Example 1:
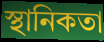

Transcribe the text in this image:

স্থানিকতা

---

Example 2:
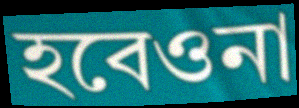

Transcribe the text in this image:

হবেওনা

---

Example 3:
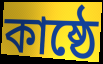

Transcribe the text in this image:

কাষ্ঠে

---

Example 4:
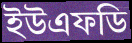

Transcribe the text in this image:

ইউএফডি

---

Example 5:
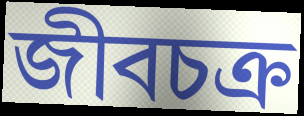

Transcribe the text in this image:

জীবচক্র